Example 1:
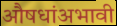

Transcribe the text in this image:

औषधांअभावी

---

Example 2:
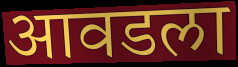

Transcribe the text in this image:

आवडला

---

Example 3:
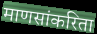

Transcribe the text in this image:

माणसांकरिता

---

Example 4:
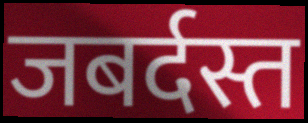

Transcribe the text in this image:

जबर्दस्त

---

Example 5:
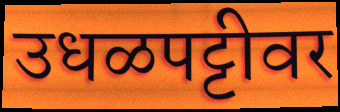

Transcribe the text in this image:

उधळपट्टीवर